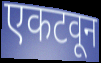
एकटवून